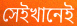
সেইখানেই